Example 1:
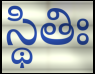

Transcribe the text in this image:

స్థితిః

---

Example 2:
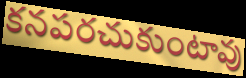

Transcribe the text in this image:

కనపరచుకుంటావు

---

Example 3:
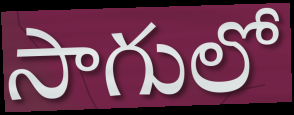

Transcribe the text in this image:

సాగులో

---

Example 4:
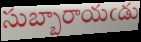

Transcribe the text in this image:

సుబ్బారాయఁడు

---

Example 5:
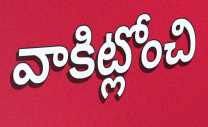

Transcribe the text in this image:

వాకిట్లోంచి